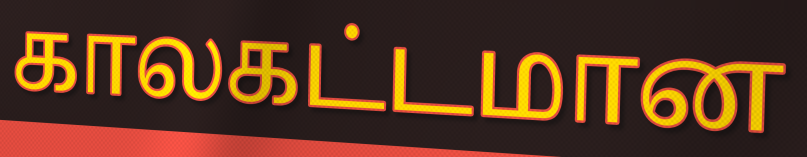
காலகட்டமான